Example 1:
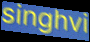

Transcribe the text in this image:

singhvi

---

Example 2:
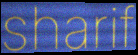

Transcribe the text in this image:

sharif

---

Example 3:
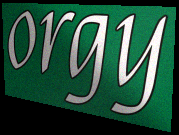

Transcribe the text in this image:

orgy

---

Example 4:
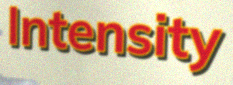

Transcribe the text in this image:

Intensity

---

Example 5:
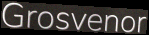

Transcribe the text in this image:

Grosvenor